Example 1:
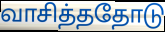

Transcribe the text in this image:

வாசித்ததோடு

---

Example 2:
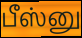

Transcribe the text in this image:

பீஸ்னு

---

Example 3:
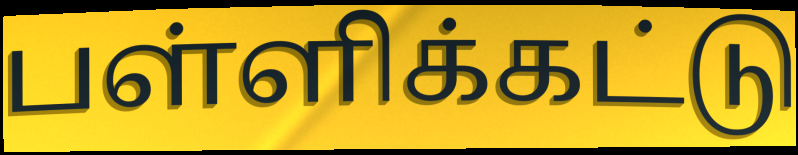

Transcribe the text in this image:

பள்ளிக்கட்டு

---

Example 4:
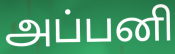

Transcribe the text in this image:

அப்பனி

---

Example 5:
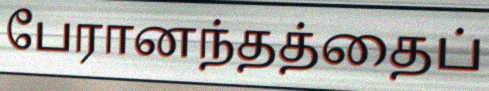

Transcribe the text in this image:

பேரானந்தத்தைப்